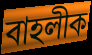
বাহলীক